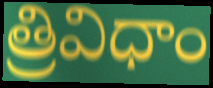
త్రివిధాం